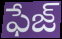
ఫేజ్